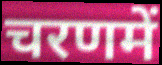
चरणमें